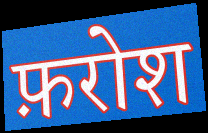
फ़रोश